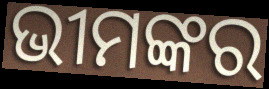
ଭୀମଙ୍କର